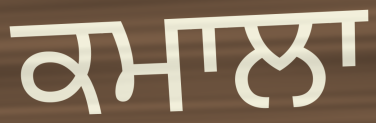
ਕਮਾਲਾ